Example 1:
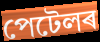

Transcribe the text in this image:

পেটেলৰ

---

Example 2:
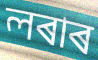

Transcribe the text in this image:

লৰাৰ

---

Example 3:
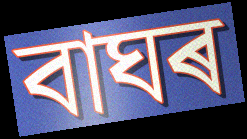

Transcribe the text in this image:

বাঘৰ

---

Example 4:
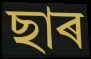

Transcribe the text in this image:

ছাৰ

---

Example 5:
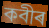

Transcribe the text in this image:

কবীৰ